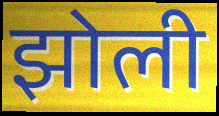
झोली